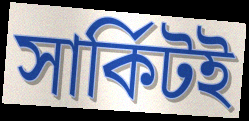
সার্কিটই